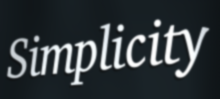
Simplicity